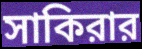
সাকিরার